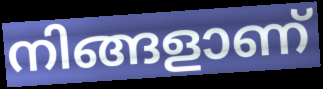
നിങ്ങളാണ്